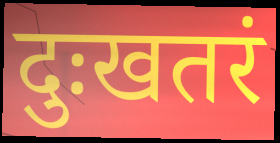
दुःखतरं